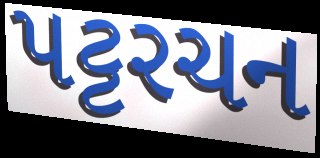
પટ્ટરચન